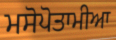
ਮਸੋਪੋਤਾਮੀਆ